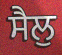
ਸੈਲੁ